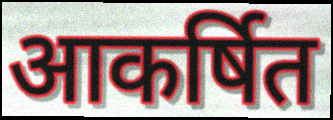
आकर्षित